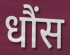
धौंस